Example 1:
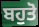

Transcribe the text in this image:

ਬਹੁਤੋ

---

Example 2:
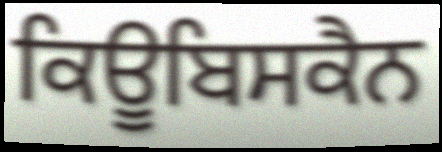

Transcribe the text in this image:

ਕਿਊਬਿਸਕੈਨ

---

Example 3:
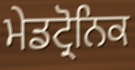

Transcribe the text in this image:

ਮੇਡਟ੍ਰੋਨਿਕ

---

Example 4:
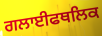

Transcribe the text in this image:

ਗਲਾਈਫਥਲਿਕ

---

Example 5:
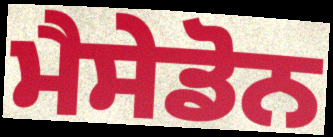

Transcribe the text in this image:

ਮੈਸੇਡੋਨ